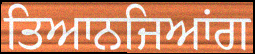
ਤਿਆਨਜਿਆਂਗ